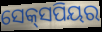
ସେକ୍‌ସପିୟର